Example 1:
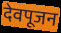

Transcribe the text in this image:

देवपूजन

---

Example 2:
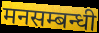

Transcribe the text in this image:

मनसम्बन्धी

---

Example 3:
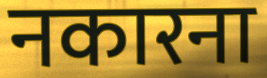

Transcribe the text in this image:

नकारना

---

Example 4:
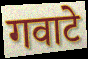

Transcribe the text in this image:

गवाटे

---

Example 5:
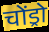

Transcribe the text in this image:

चोंड्रो